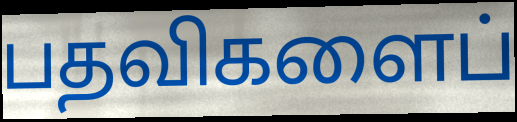
பதவிகளைப்